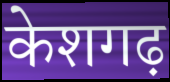
केशगढ़